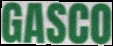
GASCO